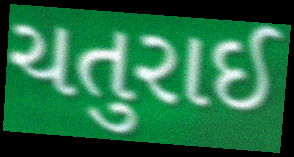
ચતુરાઈ